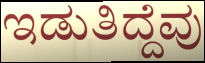
ಇಡುತಿದ್ದೆವು